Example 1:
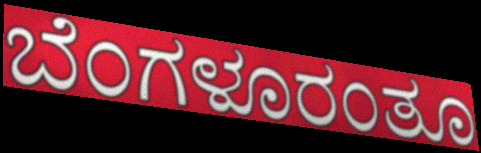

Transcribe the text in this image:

ಬೆಂಗಳೂರಂತೂ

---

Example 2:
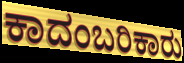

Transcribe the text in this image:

ಕಾದಂಬರಿಕಾರು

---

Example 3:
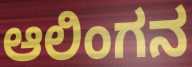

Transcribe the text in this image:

ಆಲಿಂಗನ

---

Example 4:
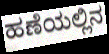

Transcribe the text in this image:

ಹಣೆಯಲ್ಲಿನ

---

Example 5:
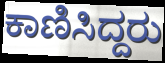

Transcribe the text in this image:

ಕಾಣಿಸಿದ್ದರು